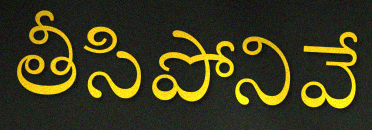
తీసిపోనివే